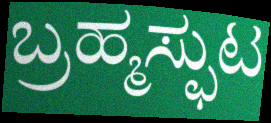
ಬ್ರಹ್ಮಸ್ಫುಟ